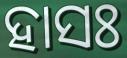
ହାସଃ